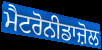
ਮੈਟਰੋਨੀਡਾਜ਼ੋਲ